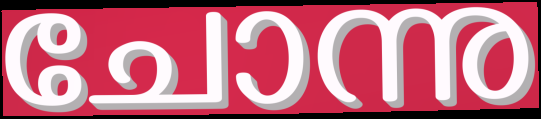
ചോന്നു